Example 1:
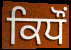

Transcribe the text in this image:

ਕਿਧੌਂ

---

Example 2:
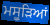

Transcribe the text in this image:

ਮਸੂੜਿਆਂ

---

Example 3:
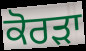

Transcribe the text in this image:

ਕੋਰੜਾ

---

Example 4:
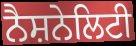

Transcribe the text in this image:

ਨੈਸ਼ਨੇਲਿਟੀ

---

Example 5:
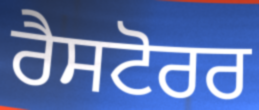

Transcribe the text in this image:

ਰੈਸਟੋਰਰ